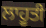
ਲਾਹੂਤੀ